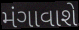
મંગાવાશે